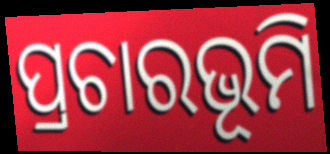
ପ୍ରଚାରଭୂମି